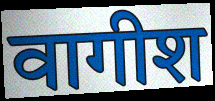
वागीश